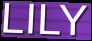
LILY